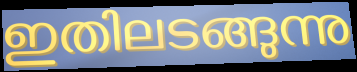
ഇതിലടങ്ങുന്നു